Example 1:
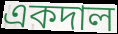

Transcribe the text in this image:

একদাল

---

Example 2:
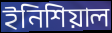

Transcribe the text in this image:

ইনিশিয়াল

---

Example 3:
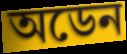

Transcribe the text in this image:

অডেন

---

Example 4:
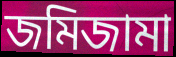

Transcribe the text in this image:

জমিজামা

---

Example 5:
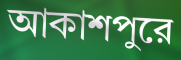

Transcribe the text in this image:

আকাশপুরে